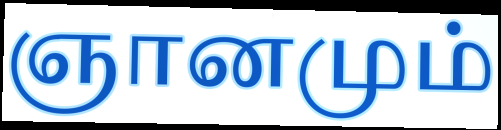
ஞானமும்